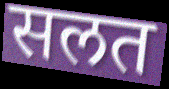
सलत